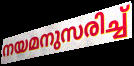
നയമനുസരിച്ച്